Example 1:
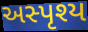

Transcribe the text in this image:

અસ્પૃશ્ય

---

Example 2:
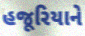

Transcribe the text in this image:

હજૂરિયાને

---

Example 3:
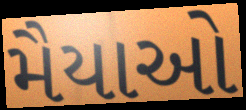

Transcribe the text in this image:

મૈયાઓ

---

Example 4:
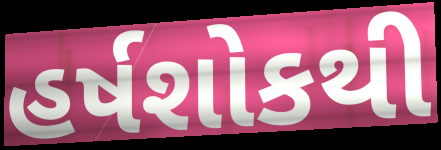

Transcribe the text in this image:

હર્ષશોકથી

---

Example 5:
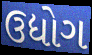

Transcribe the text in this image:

ઉદ્યોગ